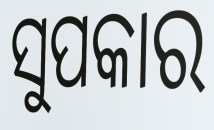
ସୁପକାର